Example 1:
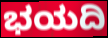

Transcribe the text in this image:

ಭಯದಿ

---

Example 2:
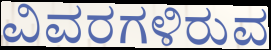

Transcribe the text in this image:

ವಿವರಗಳಿರುವ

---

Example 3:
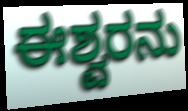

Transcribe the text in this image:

ಈಶ್ವರನು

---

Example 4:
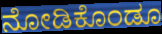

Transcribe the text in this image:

ನೋಡಿಕೊಂಡೂ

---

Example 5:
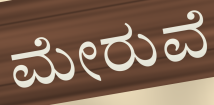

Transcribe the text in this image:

ಮೇರುವೆ